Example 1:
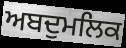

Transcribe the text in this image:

ਅਬਦੁਮਲਿਕ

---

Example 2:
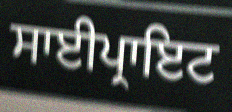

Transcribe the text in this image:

ਸਾਈਪ੍ਰਾਇਟ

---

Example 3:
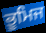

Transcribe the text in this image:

ਭੂਮਿਜ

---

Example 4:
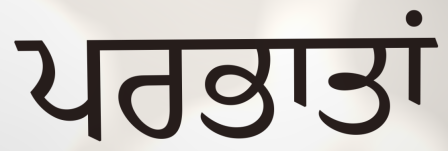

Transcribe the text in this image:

ਪਰਭਾਤਾਂ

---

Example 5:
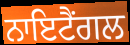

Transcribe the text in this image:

ਨਾਇਟੈਂਗਲ